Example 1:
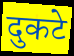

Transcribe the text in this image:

दुकटे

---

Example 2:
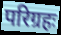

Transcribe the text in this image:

परिग्रहः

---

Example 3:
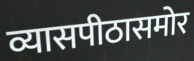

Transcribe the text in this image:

व्यासपीठासमोर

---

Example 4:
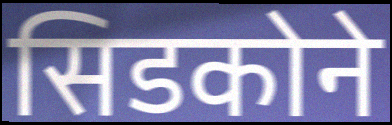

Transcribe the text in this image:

सिडकोने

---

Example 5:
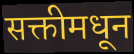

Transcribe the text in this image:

सक्तीमधून